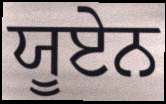
ਯੂਏਨ